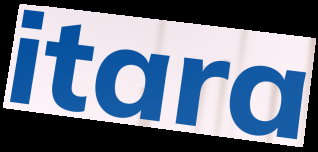
itara